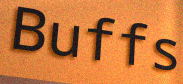
Buffs